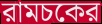
রামচকের